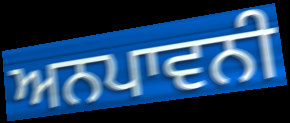
ਅਨਪਾਵਨੀ